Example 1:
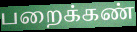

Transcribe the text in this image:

பறைக்கண்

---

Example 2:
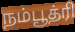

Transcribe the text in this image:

நம்பூத்ரி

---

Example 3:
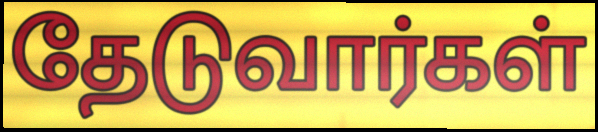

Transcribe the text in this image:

தேடுவார்கள்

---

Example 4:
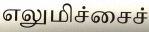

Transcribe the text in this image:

எலுமிச்சைச்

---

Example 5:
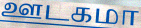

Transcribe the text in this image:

ஊடகமா